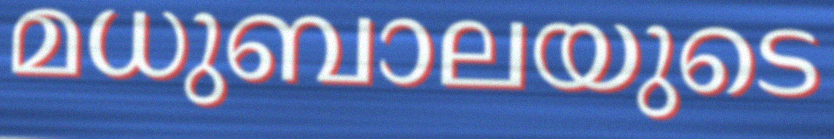
മധുബാലയുടെ